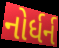
નોર્ધર્ન